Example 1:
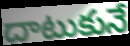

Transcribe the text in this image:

దాటుకునే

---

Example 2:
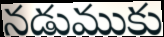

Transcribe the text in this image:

నడుముకు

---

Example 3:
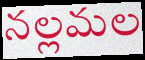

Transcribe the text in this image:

నల్లమల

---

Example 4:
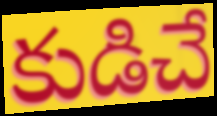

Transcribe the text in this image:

కుడిచే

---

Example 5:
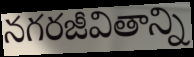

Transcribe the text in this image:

నగరజీవితాన్ని